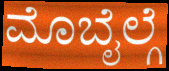
ಮೊಬೈಲ್ಗೆ